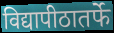
विद्यापीठातर्फे